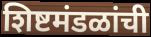
शिष्टमंडळांची